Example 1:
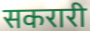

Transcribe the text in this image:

सकरारी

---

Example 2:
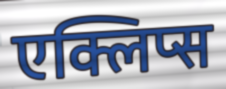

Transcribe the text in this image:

एक्लिप्स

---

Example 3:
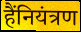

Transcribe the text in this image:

हैंनियंत्रण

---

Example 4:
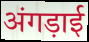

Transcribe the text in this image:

अंगड़ाई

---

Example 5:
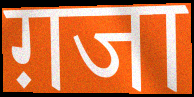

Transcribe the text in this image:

ग़जा